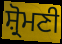
ਸ਼੍ਰੋਮਣੀ